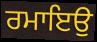
ਰਮਾਇਉ